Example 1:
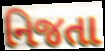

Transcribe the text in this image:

નિજતા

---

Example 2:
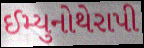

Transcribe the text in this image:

ઈમ્યુનોથેરાપી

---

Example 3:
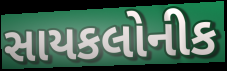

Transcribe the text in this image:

સાયકલોનીક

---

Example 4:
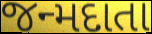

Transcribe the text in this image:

જન્મદાતા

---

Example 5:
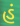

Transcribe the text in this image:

હં